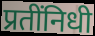
प्रतींनिधी